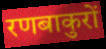
रणबाकुरों